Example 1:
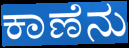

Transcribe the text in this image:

ಕಾಣೆನು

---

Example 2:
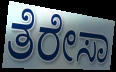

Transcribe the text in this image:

ತೆರೇಸಾ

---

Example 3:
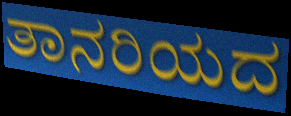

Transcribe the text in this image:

ತಾನರಿಯದ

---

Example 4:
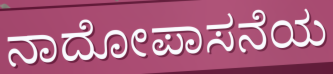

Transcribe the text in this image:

ನಾದೋಪಾಸನೆಯ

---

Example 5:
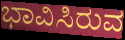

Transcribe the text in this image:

ಭಾವಿಸಿರುವ